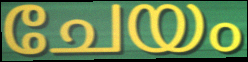
ചേയം